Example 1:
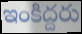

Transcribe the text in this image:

ఇంకిద్దరు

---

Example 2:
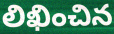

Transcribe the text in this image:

లిఖించిన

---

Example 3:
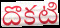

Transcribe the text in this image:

దొకటి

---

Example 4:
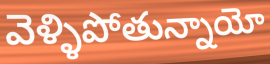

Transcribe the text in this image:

వెళ్ళిపోతున్నాయో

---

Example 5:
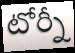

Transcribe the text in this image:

టోర్నీ